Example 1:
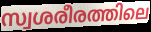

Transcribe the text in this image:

സ്വശരീരത്തിലെ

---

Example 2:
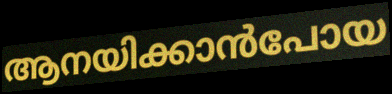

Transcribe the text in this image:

ആനയിക്കാൻപോയ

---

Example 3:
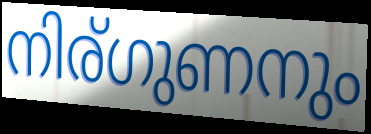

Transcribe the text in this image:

നിര്ഗുണനും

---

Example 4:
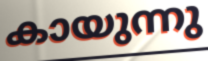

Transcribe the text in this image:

കായുന്നു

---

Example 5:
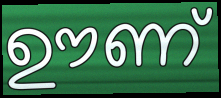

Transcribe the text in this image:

ഊണ്